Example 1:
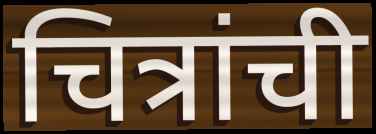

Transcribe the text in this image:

चित्रांची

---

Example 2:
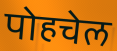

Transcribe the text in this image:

पोहचेल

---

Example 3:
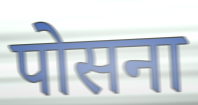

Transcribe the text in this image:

पोसना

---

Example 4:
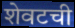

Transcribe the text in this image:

शेवटची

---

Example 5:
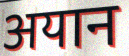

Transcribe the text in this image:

अयान